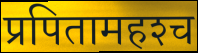
प्रपितामहश्च